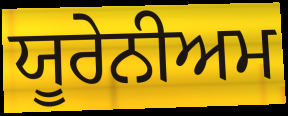
ਯੂਰੇਨੀਅਮ